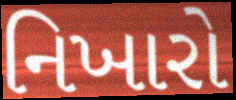
નિખારો